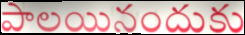
పాలయినందుకు